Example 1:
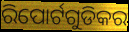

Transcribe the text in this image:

ରିପୋର୍ଟଗୁଡିକର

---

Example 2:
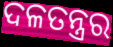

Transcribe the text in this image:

ଦଳତନ୍ତ୍ରର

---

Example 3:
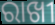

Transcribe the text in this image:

ରାଖୀ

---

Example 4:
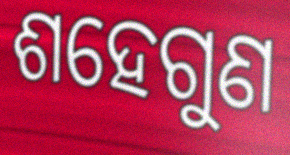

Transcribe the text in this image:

ଶହେଗୁଣ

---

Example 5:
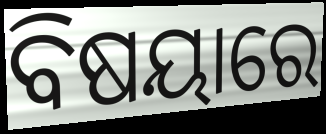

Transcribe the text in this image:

ବିଷୟାରେ